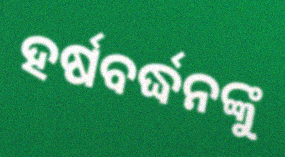
ହର୍ଷବର୍ଦ୍ଧନଙ୍କୁ